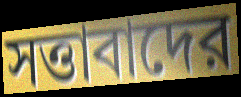
সত্তাবাদের